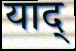
याद्